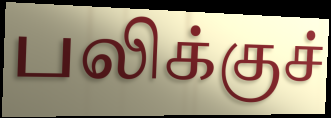
பலிக்குச்